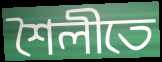
শৈলীতে